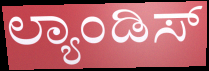
ಲ್ಯಾಂಡಿಸ್